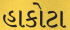
હાકોટા